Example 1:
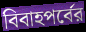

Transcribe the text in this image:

বিবাহপর্বের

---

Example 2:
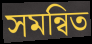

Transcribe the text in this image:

সমন্বিত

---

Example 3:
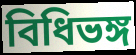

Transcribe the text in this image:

বিধিভঙ্গ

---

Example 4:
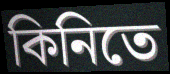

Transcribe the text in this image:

কিনিতে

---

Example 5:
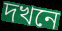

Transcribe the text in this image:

দখনে